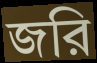
জরি